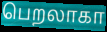
பெறலாகா